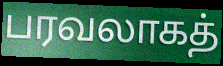
பரவலாகத்